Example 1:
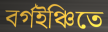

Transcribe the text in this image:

বর্গইঞ্চিতে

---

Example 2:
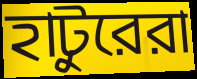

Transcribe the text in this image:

হাটুরেরা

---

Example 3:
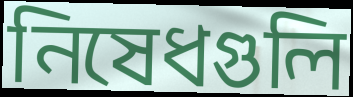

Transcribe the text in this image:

নিষেধগুলি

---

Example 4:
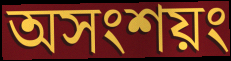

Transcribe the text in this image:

অসংশয়ং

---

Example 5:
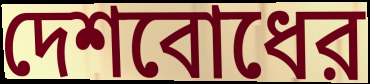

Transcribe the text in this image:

দেশবোধের